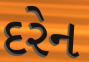
દરેન